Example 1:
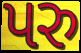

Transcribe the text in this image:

પરુ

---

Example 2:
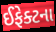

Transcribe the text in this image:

ઈફેક્ટના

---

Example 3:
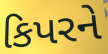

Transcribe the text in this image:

કિપરને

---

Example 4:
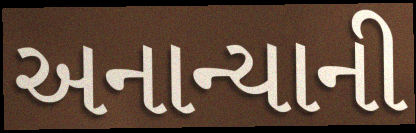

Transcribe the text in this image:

અનાન્યાની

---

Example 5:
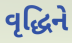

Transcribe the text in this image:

વૃદ્ધિને